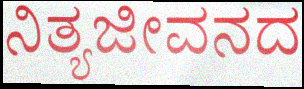
ನಿತ್ಯಜೀವನದ